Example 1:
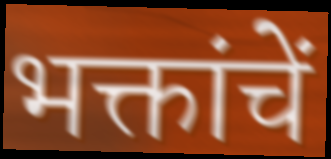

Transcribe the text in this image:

भक्तांचें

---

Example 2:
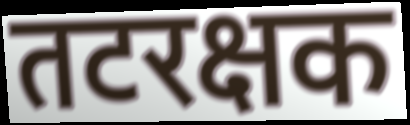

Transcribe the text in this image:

तटरक्षक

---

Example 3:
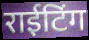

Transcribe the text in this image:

राईटिंग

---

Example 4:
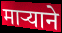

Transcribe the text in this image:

मार्‍याने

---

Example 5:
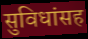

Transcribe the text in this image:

सुविधांसह